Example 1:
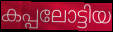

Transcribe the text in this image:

കപ്പലോട്ടിയ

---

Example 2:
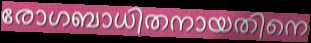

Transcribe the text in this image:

രോഗബാധിതനായതിനെ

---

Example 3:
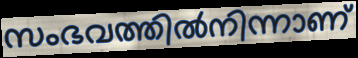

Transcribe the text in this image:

സംഭവത്തിൽനിന്നാണ്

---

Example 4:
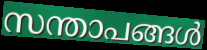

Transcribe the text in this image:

സന്താപങ്ങൾ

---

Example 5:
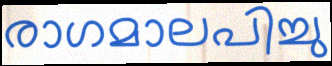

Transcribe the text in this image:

രാഗമാലപിച്ചു